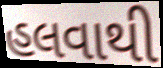
હલવાથી